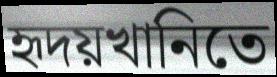
হৃদয়খানিতে